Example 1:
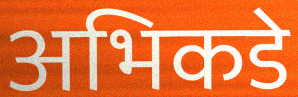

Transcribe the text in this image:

अभिकडे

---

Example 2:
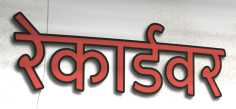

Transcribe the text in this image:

रेकार्डवर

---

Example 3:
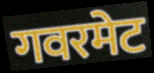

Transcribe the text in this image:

गवरमेट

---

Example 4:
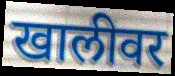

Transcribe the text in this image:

खालीवर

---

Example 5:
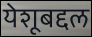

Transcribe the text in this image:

येशूबद्दल